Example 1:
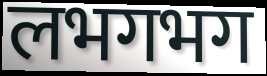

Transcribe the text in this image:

लभगभग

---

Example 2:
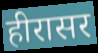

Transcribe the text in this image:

हीरासर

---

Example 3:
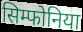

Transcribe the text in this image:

सिम्फोनिया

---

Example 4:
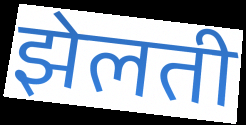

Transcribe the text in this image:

झेलती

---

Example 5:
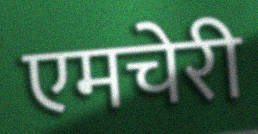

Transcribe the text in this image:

एमचेरी